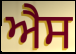
ਐੈਸ